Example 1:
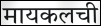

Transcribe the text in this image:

मायकलची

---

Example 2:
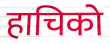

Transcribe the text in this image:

हाचिको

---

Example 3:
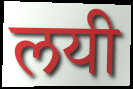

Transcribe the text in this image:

लयी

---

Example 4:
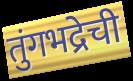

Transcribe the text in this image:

तुंगभद्रेची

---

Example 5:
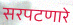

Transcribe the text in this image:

सरपटणारे